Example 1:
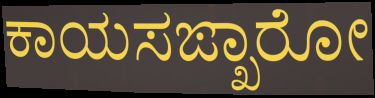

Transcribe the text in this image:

ಕಾಯಸಙ್ಖಾರೋ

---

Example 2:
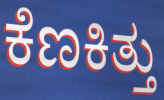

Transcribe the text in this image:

ಕೆಣಕಿತ್ತು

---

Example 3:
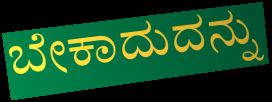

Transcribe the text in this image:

ಬೇಕಾದುದನ್ನು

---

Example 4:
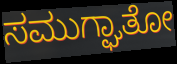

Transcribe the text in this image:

ಸಮುಗ್ಘಾತೋ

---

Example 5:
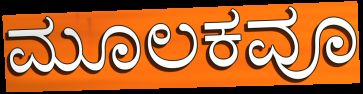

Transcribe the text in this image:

ಮೂಲಕವೂ